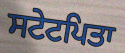
ਸਟੇਟਪਿਤਾ